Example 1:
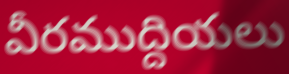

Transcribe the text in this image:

వీరముద్దియలు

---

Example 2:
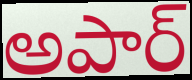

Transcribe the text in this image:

అపార్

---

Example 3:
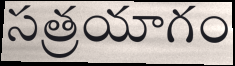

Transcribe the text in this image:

సత్రయాగం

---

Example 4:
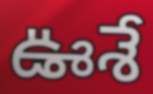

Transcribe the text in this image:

ఊశే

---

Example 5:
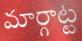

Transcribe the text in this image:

మార్గాట్ట